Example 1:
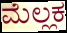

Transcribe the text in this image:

ಮೆಲ್ಲಕ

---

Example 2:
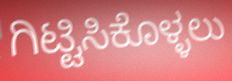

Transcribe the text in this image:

ಗಿಟ್ಟಿಸಿಕೊಳ್ಳಲು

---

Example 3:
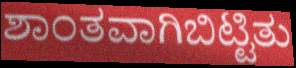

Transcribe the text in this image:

ಶಾಂತವಾಗಿಬಿಟ್ಟಿತು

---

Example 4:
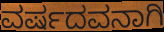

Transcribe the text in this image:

ವರ್ಷದವನಾಗಿ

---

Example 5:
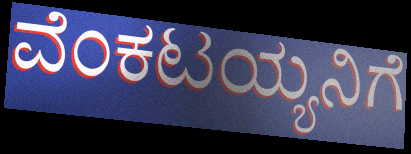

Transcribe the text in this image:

ವೆಂಕಟಯ್ಯನಿಗೆ